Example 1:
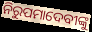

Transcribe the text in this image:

ନିରୁପମାଦେବୀଙ୍କୁ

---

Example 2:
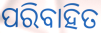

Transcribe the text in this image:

ପରିବାହିତ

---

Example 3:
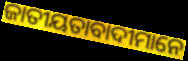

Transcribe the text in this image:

ଜାତୀୟତାବାଦୀମାନେ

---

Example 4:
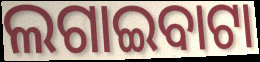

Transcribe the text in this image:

ଲଗାଇବାଟା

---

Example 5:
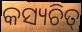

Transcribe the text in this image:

କସ୍ୟଚିତ୍